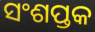
ସଂଶପ୍ତକ